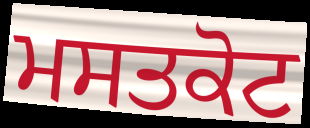
ਮਸਤਕੋਟ